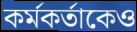
কর্মকর্তাকেও